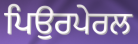
ਪਿਉਰਪੇਰਲ